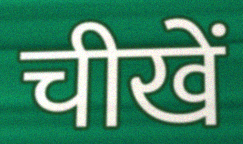
चीखें